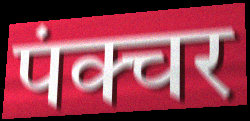
पंक्‍चर